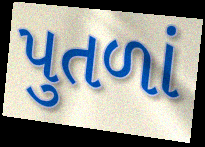
પુતળાં